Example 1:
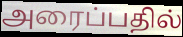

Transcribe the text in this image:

அரைப்பதில்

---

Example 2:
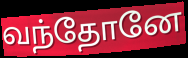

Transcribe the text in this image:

வந்தோனே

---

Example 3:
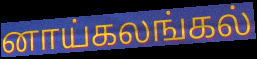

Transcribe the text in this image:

னாய்கலங்கல்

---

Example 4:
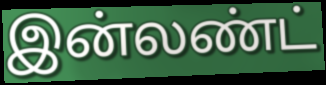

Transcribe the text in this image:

இன்லண்ட்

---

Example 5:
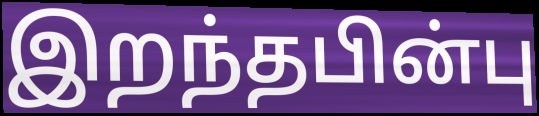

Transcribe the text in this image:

இறந்தபின்பு